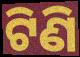
ଟିଣି